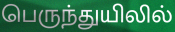
பெருந்துயிலில்